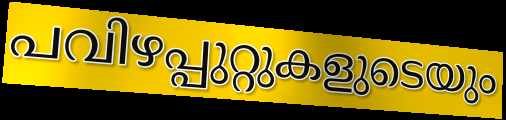
പവിഴപ്പുറ്റുകളുടെയും